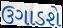
ઉગાડશે